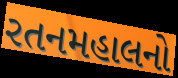
રતનમહાલનો